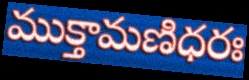
ముక్తామణిధరః